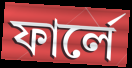
ফার্লে